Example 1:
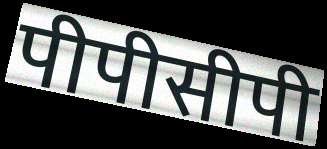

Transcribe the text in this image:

पीपीसीपी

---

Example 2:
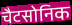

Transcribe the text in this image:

चैटसोनिक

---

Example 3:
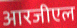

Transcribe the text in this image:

आरजीएल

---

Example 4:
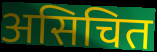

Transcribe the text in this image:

असिचित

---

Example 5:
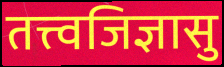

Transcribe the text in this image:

तत्त्वजिज्ञासु